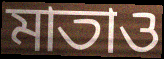
মাতাও